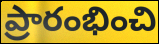
ప్రారంభించి